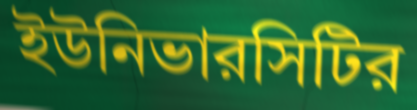
ইউনিভারসিটির